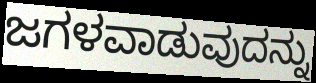
ಜಗಳವಾಡುವುದನ್ನು